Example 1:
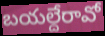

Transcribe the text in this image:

బయల్దేరావో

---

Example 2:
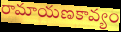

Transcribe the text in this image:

రామాయణకావ్యం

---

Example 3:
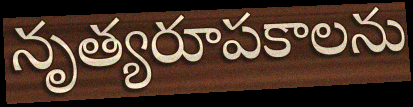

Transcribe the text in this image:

నృత్యరూపకాలను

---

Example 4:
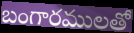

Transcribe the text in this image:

బంగారములతో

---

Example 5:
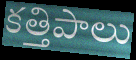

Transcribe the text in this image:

కత్తిపాలు